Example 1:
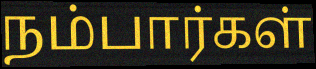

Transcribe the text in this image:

நம்பார்கள்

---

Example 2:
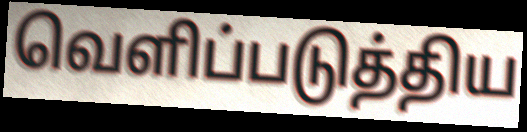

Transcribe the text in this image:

வெளிப்படுத்திய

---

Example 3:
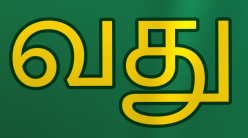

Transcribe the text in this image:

வது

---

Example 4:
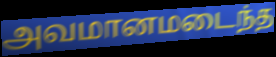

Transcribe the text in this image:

அவமானமடைந்த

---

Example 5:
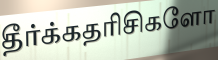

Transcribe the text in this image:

தீர்க்கதரிசிகளோ